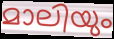
മാലിയും